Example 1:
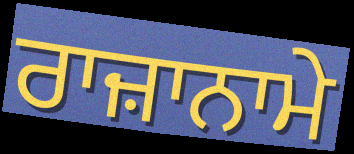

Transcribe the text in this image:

ਰਾਜ਼ਾਨਾਮੇ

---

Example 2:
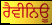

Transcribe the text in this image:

ਰੈਵੀਨਿਊ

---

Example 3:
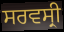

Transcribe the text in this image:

ਸਰਵਸ੍ਰੀ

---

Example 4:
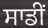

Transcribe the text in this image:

ਸਾਡੀਂ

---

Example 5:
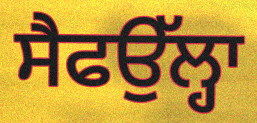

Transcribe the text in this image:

ਸੈਫਉੱਲ੍ਹਾ